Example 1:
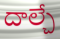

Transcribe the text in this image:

దాల్చే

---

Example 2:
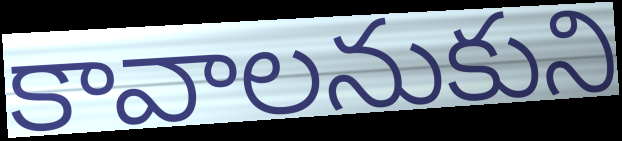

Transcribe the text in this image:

కావాలనుకుని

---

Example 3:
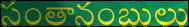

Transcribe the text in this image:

సంతానంబులు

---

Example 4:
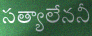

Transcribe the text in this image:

సత్యాలేననీ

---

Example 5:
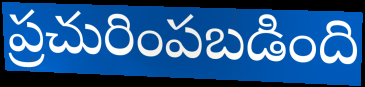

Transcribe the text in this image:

ప్రచురింపబడింది